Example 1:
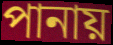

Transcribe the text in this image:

পানায়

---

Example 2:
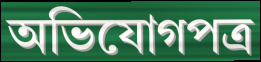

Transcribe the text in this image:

অভিযোগপত্র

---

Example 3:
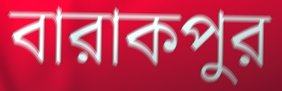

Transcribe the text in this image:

বারাকপুর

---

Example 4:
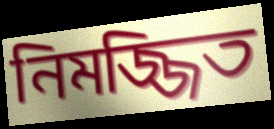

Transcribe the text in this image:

নিমজ্জিত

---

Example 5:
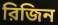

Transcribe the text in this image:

রিজিন